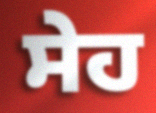
ਸੇਹ